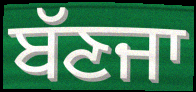
ਬੱਣਜਾ